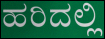
ಹರಿದಲ್ಲಿ